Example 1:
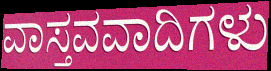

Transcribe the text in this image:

ವಾಸ್ತವವಾದಿಗಳು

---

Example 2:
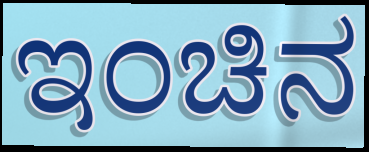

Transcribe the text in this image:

ಇಂಚಿನ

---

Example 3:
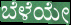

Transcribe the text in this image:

ಬೆಳೆಯೇ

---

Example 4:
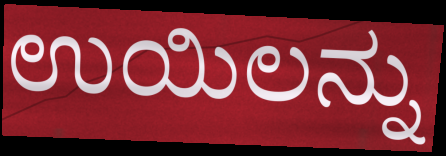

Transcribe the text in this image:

ಉಯಿಲನ್ನು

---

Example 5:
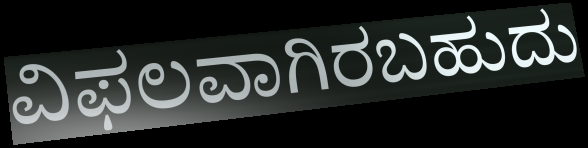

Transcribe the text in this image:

ವಿಫಲವಾಗಿರಬಹುದು